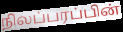
நிலப்பரப்பின்